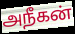
அநீகன்